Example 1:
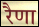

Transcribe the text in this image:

रैणा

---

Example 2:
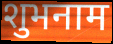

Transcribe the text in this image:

शुभनाम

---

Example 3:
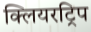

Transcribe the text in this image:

क्लियरट्रिप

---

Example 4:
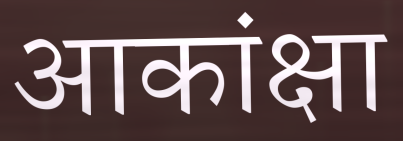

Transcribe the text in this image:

आकांक्षा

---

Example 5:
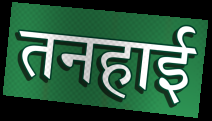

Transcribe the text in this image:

तनहाई